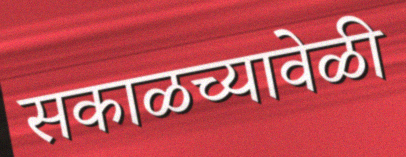
सकाळच्यावेळी